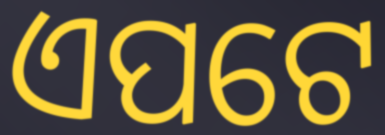
ଏପଟେ